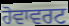
ਹੋਵਾਵਰਟ